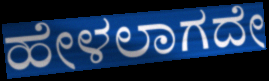
ಹೇಳಲಾಗದೇ